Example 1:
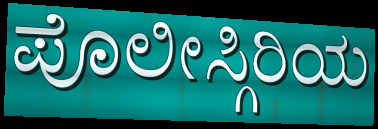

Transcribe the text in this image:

ಪೊಲೀಸ್ಗಿರಿಯ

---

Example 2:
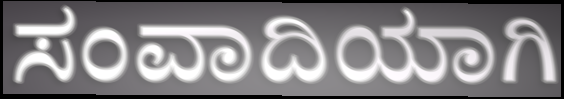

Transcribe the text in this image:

ಸಂವಾದಿಯಾಗಿ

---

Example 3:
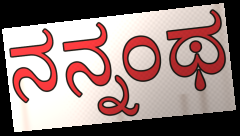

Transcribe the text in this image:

ನನ್ನಂಥ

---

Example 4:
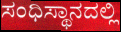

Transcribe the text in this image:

ಸಂಧಿಸ್ಥಾನದಲ್ಲಿ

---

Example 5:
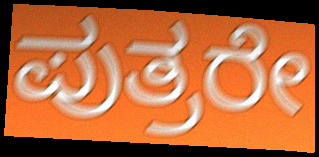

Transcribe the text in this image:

ಪುತ್ರರೇ